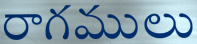
రాగములు